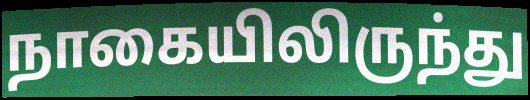
நாகையிலிருந்து